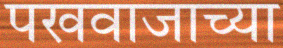
पखवाजाच्या